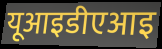
यूआइडीएआइ